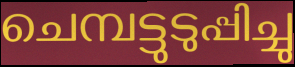
ചെമ്പട്ടുടുപ്പിച്ചു